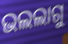
ଭଲଲାଗୁ